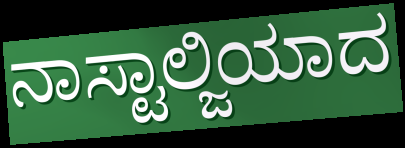
ನಾಸ್ಟಾಲ್ಜಿಯಾದ